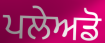
ਪਲੇਅਡੋ